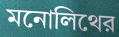
মনোলিথের